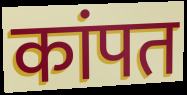
कांपत